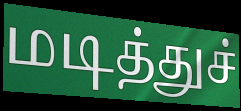
மடித்துச்